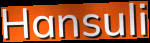
Hansuli